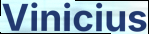
Vinicius